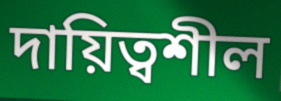
দায়িত্বশীল